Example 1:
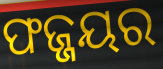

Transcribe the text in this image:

ଫଜ୍ଜୟର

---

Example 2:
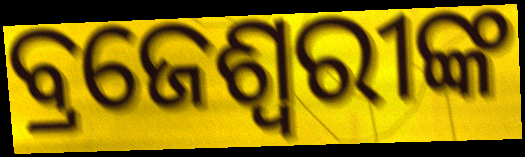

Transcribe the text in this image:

ବ୍ରଜେଶ୍ୱରୀଙ୍କ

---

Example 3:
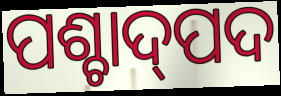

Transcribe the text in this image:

ପଶ୍ଚାଦ୍‍ପଦ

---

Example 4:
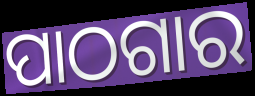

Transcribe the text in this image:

ପାଠଗାର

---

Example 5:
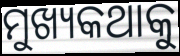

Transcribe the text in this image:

ମୁଖ୍ୟକଥାକୁ